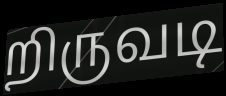
றிருவடி